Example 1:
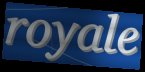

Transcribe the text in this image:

royale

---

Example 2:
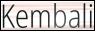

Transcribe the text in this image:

Kembali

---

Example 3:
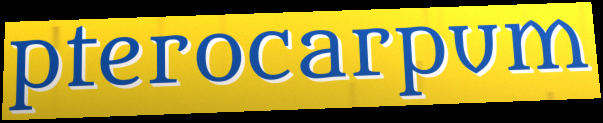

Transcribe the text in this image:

pterocarpum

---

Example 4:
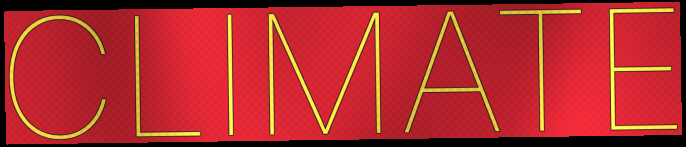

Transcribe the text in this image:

CLIMATE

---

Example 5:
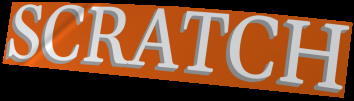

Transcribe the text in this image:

SCRATCH